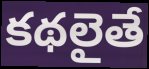
కథలైతే